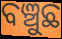
ବଞ୍ଚୁଛ